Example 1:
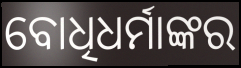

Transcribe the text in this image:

ବୋଧିଧର୍ମାଙ୍କର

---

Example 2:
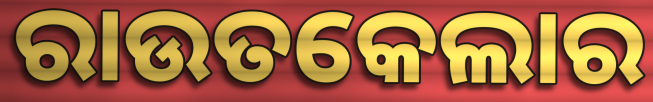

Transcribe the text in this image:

ରାଉତକେଲାର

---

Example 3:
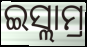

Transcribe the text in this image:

ଇସ୍ଲାମ୍ର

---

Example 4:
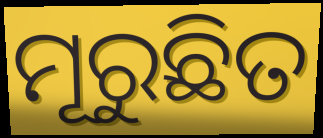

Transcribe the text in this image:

ମୂରୁଛିତ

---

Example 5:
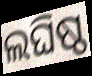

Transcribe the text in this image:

ଲଘିଷ୍ଠ